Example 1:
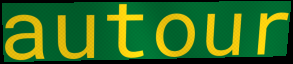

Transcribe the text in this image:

autour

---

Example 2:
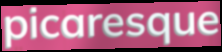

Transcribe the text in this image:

picaresque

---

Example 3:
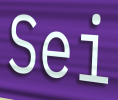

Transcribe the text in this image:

Sei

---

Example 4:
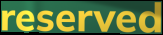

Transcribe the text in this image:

reserved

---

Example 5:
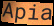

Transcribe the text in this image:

Apia